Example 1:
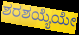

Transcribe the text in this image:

ಶರಶಯ್ಯೆಯೇ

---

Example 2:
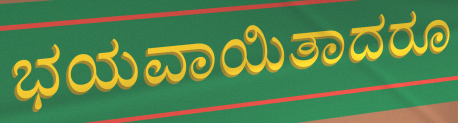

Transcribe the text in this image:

ಭಯವಾಯಿತಾದರೂ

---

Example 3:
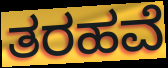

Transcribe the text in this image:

ತರಹವೆ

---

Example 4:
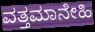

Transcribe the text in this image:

ವತ್ತಮಾನೇಹಿ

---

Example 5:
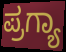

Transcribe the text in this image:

ಪ್ರಗ್ಯಾ